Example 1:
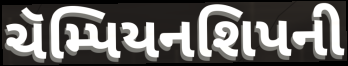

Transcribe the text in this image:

ચૅમ્પિયનશિપની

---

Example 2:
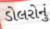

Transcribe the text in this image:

ડોલરોનું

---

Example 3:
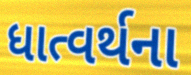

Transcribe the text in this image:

ધાત્વર્થના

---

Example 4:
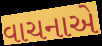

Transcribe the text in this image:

વાચનાએ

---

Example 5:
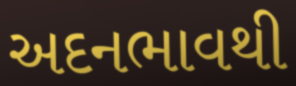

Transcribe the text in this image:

અદનભાવથી